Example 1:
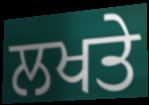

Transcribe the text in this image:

ਲਖਤੇ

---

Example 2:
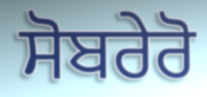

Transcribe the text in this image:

ਸੋਬਰੇਰੋ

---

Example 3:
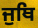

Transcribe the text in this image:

ਜੁਥਿ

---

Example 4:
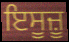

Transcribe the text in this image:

ਇਸੂਜ਼ੂ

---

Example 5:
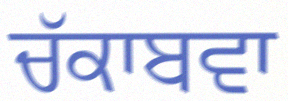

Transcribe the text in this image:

ਚੱਕਾਬਵਾ